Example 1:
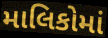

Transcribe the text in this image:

માલિકોમાં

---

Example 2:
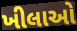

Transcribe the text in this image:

ખીલાઓ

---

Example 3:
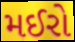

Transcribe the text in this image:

મઈરો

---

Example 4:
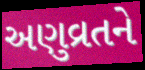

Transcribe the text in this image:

અણુવ્રતને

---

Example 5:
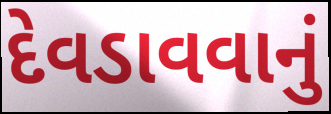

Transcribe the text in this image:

દેવડાવવાનું